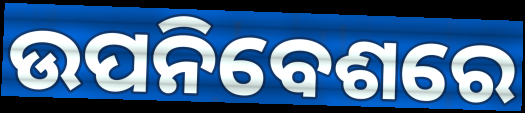
ଉପନିବେଶରେ